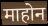
माहोन